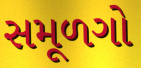
સમૂળગો